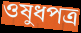
ওষুধপত্র